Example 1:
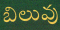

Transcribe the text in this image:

బిలువు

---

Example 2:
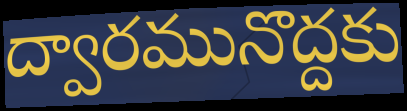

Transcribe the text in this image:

ద్వారమునొద్దకు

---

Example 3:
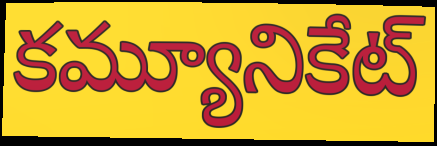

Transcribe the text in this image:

కమ్యూనికేట్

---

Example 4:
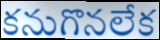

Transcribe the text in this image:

కనుగొనలేక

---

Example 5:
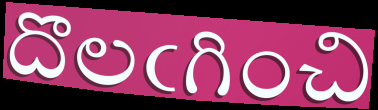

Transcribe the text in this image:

దొలఁగించి